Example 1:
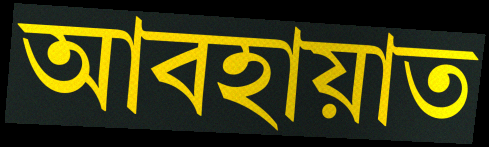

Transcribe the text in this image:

আবহায়াত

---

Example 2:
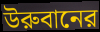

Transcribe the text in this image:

উরুবানের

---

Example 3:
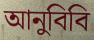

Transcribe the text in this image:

আনুবিবি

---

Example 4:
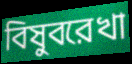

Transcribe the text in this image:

বিষুবরেখা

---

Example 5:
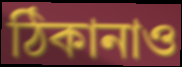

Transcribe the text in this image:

ঠিকানাও